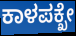
ಕಾಳಪಕ್ಖೇ